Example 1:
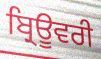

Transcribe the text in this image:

ਬ੍ਰਿਊਵਰੀ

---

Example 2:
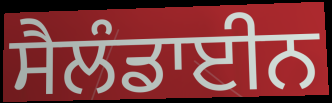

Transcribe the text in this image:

ਸੈਲੰਡਾਈਨ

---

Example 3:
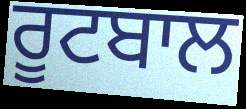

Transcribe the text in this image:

ਰੂਟਬਾਲ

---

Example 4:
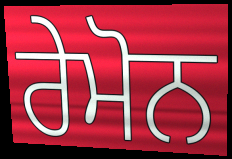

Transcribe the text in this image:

ਰੇਮੋਨ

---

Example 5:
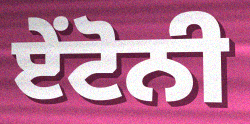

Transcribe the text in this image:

ਏਂਟੋਨੀ